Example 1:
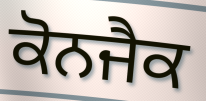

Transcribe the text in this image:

ਕੋਨਜੈਕ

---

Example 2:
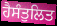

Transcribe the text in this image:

ਹੈਸੰਤੁਲਿਤ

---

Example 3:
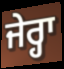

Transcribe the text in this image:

ਜੇਰ੍ਹਾ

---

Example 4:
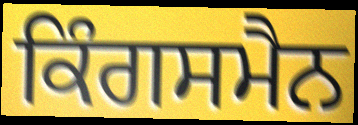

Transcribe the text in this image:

ਕਿੰਗਸਮੈਨ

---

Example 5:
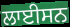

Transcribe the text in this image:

ਲਾਈਸਨ